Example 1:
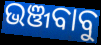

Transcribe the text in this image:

ଭଞ୍ଜବାବୁ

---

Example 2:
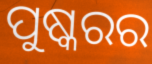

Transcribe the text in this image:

ପୁଷ୍କରର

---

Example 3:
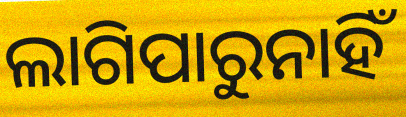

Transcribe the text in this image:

ଲାଗିପାରୁନାହିଁ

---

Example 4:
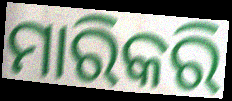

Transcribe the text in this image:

ମାରିକରି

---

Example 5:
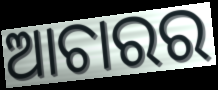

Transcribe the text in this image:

ଆଚାରର